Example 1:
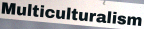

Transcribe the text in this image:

Multiculturalism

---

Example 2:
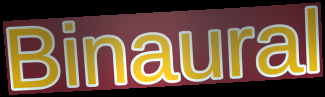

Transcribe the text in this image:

Binaural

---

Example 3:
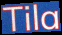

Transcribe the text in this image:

Tila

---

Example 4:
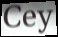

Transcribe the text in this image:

Cey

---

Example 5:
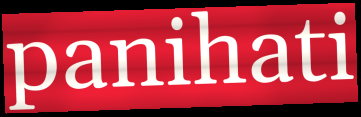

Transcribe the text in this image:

panihati